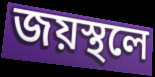
জয়স্থলে